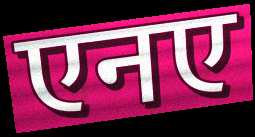
एनए